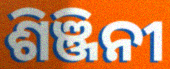
ଶିଞ୍ଜିନୀ